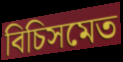
বিচিসমেত